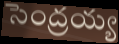
సెంద్రయ్య